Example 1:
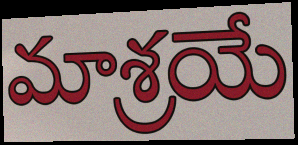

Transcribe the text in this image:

మాశ్రయే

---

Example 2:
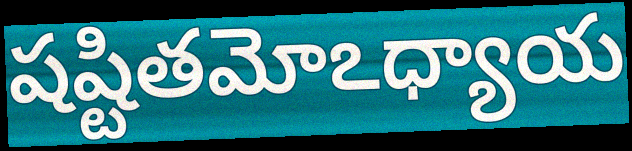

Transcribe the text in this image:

షష్టితమోఽధ్యాయ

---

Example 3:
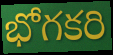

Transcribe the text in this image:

భోగకరి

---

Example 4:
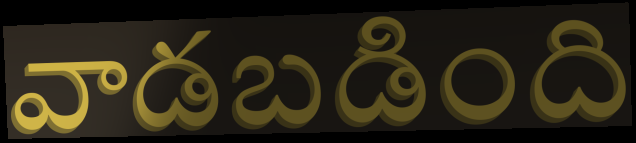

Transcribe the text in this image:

వాడబడింది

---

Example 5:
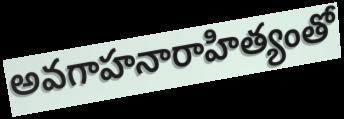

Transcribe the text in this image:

అవగాహనారాహిత్యంతో